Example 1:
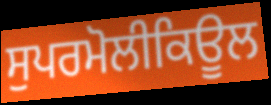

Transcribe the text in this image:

ਸੁਪਰਮੋਲੀਕਿਊਲ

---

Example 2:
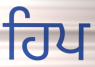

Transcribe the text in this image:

ਹਿਪ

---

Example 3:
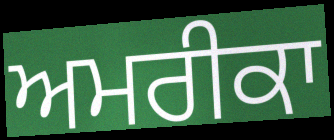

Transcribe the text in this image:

ਅਮਰੀਕਾ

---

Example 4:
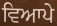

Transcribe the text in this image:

ਵਿਆਪੇ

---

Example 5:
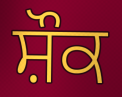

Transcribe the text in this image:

ਸ਼ੌਕ